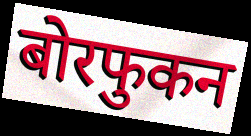
बोरफुकन